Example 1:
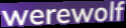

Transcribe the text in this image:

werewolf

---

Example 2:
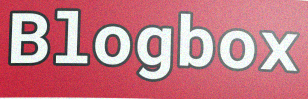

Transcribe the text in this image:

Blogbox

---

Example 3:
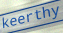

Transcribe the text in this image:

keerthy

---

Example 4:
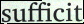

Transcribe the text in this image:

sufficit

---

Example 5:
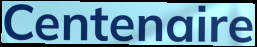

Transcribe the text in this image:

Centenaire